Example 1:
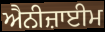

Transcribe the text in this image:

ਐਨੀਜ਼ਾਈਮ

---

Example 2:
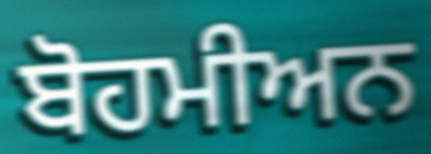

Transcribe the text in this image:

ਬੋਹਮੀਅਨ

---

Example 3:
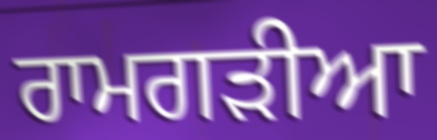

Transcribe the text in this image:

ਰਾਮਗੜੀਆ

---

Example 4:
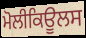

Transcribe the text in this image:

ਮੋਲੀਕਿਊਲਸ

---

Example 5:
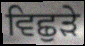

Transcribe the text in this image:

ਵਿਛੁੜੇ